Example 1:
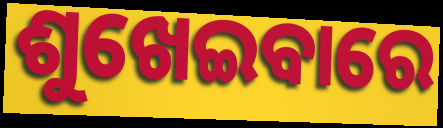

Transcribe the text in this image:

ଶୁଖେଇବାରେ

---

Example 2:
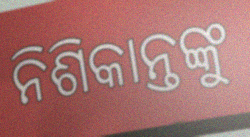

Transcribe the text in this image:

ନିଶିକାନ୍ତଙ୍କୁ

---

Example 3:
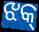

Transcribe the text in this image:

ଝକ୍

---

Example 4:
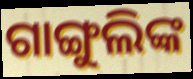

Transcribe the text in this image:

ଗାଙ୍ଗୁଲିଙ୍କ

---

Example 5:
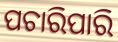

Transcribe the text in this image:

ପଚାରିପାରି